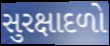
સુરક્ષાદળો